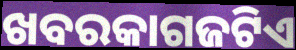
ଖବରକାଗଜଟିଏ